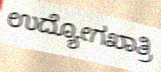
ಉದ್ಯೋಗಖಾತ್ರಿ